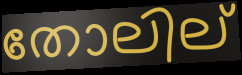
തോലില്